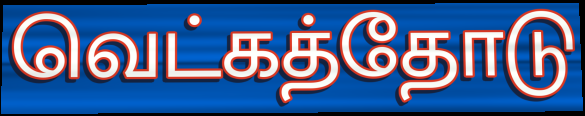
வெட்கத்தோடு